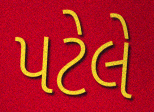
પટેલે